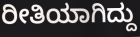
ರೀತಿಯಾಗಿದ್ದು